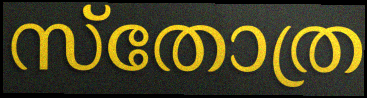
സ്തോത്ര